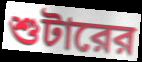
শুটারের